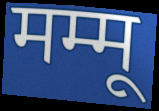
मम्मू